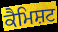
ਕੈਮਿਸ਼ਟ